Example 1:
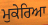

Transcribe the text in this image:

ਮੁਕੇਰਿਆ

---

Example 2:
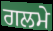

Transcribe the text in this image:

ਗਲਮੇ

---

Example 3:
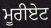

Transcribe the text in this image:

ਮੂਰੀਏਟ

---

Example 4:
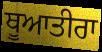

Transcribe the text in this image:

ਥੂਆਤੀਰਾ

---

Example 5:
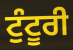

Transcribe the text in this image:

ਟੁੰਟੂਰੀ